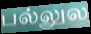
பல்லுல